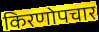
किरणोपचार